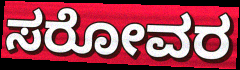
ಸರೋವರ